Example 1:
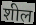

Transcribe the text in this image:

शील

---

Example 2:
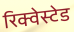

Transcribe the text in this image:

रिक्वेस्टेड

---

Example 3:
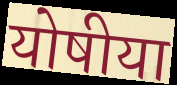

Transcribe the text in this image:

योषीया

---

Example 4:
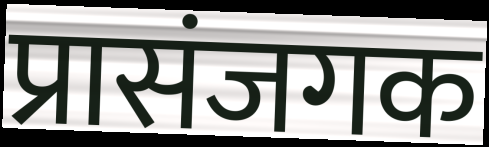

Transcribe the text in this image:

प्रासंजगक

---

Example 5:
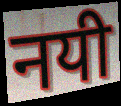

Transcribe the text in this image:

नयी